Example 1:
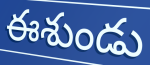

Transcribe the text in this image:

ఈశుండు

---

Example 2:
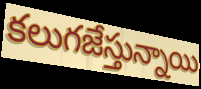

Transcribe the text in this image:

కలుగజేస్తున్నాయి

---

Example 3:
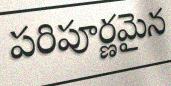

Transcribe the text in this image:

పరిపూర్ణమైన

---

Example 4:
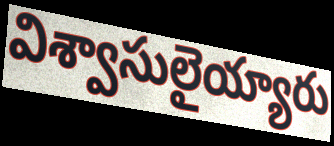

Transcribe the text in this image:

విశ్వాసులైయ్యారు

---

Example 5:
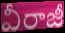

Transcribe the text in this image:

వీరాజీ